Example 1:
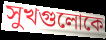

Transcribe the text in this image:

সুখগুলোকে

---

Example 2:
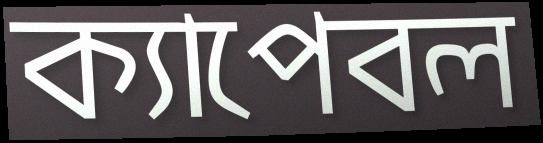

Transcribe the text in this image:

ক্যাপেবল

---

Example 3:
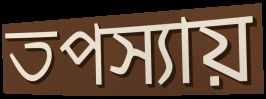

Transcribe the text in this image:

তপস্যায়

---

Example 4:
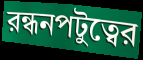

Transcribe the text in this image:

রন্ধনপটুত্বের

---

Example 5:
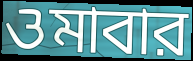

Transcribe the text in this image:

ওমাবার